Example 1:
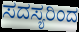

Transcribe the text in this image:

ಸದಸ್ಯರಿಂದ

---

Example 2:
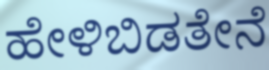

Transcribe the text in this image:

ಹೇಳಿಬಿಡತೇನೆ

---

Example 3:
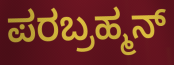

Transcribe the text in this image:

ಪರಬ್ರಹ್ಮನ್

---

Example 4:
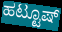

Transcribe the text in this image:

ಹಟ್ಟೂಷ್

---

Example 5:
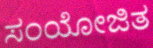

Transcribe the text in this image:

ಸಂಯೋಜಿತ